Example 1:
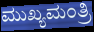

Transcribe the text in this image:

ಮುಖ್ಯಮಂತ್ರಿ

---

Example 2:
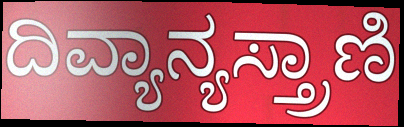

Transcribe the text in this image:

ದಿವ್ಯಾನ್ಯಸ್ತ್ರಾಣಿ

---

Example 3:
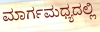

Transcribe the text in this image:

ಮಾರ್ಗಮಧ್ಯದಲ್ಲಿ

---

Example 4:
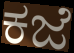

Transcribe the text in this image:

ಕಜೆ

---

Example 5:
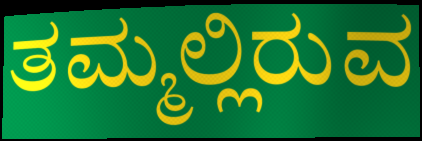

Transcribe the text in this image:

ತಮ್ಮಲ್ಲಿರುವ